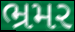
ભ્રમર